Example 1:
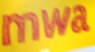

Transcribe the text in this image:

mwa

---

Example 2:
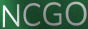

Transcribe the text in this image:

NCGO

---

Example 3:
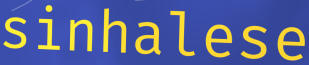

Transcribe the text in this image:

sinhalese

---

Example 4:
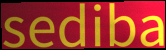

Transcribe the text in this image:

sediba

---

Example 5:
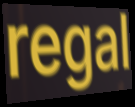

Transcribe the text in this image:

regal